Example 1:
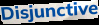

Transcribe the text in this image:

Disjunctive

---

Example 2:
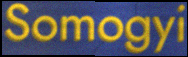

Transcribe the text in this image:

Somogyi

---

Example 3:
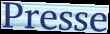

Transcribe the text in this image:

Presse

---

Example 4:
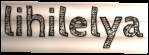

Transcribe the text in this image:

lihilelya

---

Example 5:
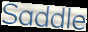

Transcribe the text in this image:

Saddle